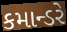
કમાન્ડરે